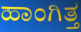
ಹಾಂಗಿತ್ತ